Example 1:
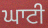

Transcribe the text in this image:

ਘਾਟੀ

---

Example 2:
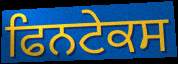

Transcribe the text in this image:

ਫਿਨਟੇਕਸ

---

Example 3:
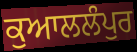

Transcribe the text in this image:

ਕੁਆਲਲੰਪੁਰ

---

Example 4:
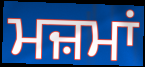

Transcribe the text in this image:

ਮਜ਼ਮਾਂ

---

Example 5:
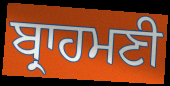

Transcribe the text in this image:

ਬ੍ਰਾਹਮਣੀ